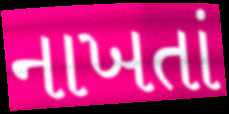
નાખતાં